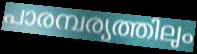
പാരമ്പര്യത്തിലും